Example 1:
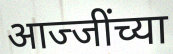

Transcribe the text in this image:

आज्जींच्या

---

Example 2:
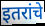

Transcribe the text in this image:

इतरांचे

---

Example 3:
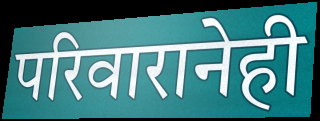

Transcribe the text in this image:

परिवारानेही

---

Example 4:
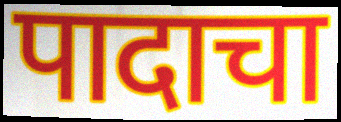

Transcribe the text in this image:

पादाचा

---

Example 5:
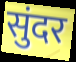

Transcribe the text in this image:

सुंदर